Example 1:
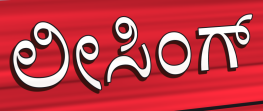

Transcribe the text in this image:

ಲೀಸಿಂಗ್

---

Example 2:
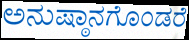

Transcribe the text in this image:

ಅನುಷ್ಠಾನಗೊಂಡರೆ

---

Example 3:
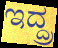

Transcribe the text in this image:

ಇದ್ದ್ರ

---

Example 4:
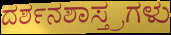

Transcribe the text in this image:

ದರ್ಶನಶಾಸ್ತ್ರಗಳು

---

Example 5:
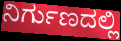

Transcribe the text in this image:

ನಿರ್ಗುಣದಲ್ಲಿ